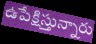
ఉపేక్షిస్తున్నారు